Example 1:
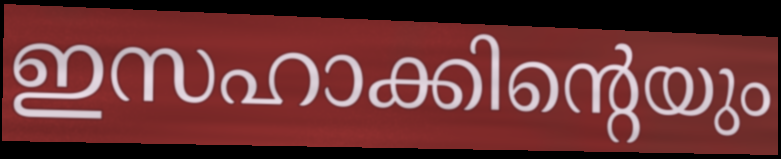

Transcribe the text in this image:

ഇസഹാക്കിന്റെയും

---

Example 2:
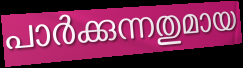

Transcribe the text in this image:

പാർക്കുന്നതുമായ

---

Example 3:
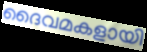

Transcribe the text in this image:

ദൈവമകളായി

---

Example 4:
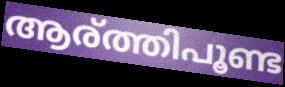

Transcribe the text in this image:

ആര്ത്തിപൂണ്ട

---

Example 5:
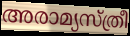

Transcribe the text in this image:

അരാമ്യസ്ത്രീ